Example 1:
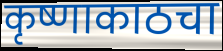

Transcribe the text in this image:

कृष्णाकाठचा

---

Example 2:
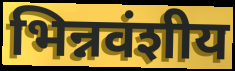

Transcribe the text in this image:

भिन्नवंशीय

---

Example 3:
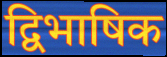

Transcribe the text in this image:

द्विभाषिक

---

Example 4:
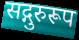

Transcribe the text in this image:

सद्गुरुरूप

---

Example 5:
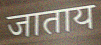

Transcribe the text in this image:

जाताय